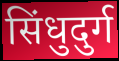
सिंधुदुर्ग